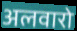
अलवारो